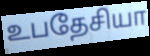
உபதேசியா